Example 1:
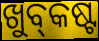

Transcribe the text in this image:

ଖୁବ୍‌କଷ୍ଟ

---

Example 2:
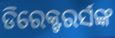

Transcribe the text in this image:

ଡିରେକ୍ଟରର୍ସଙ୍କ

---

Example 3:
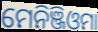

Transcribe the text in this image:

ମେନିଞ୍ଜିଓମା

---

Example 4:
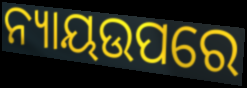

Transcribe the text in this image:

ନ୍ୟାୟଉପରେ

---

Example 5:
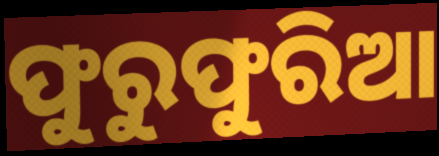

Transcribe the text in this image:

ଫୁରୁଫୁରିଆ